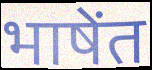
भाषेंत